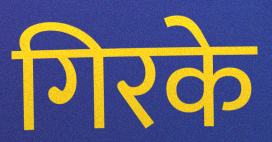
गिरके